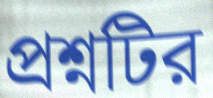
প্রশ্নটির